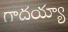
గాదయ్యా